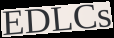
EDLCs